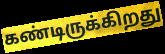
கண்டிருக்கிறது